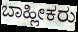
ಬಾಹ್ಲೀಕರು